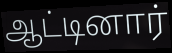
ஆட்டினார்